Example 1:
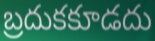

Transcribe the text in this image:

బ్రదుకకూడదు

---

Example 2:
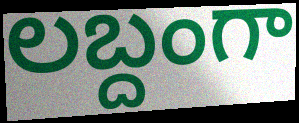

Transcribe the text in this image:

లబ్దంగా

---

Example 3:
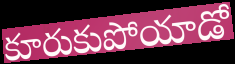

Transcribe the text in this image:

కూరుకుపోయాడో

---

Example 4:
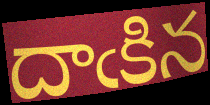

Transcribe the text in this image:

దాఁకిన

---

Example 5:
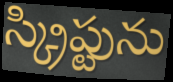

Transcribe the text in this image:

స్క్రిప్టును